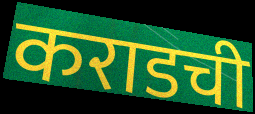
कराडची